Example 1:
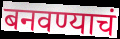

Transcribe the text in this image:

बनवण्याचं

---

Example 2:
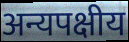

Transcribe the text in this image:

अन्यपक्षीय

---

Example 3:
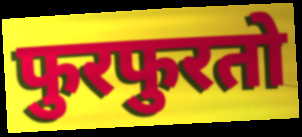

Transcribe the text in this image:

फुरफुरतो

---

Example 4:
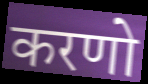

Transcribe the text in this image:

करणो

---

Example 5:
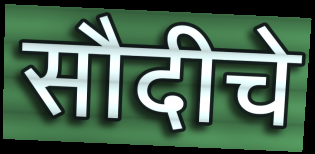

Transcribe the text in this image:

सौदीचे